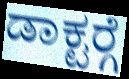
ಡಾಕ್ಟರ್‍ಗೆ